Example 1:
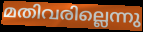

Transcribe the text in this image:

മതിവരില്ലെന്നു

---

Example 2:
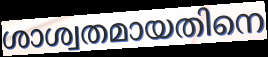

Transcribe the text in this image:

ശാശ്വതമായതിനെ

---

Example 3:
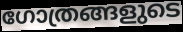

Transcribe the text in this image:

ഗോത്രങ്ങളുടെ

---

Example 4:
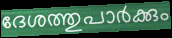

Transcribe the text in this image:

ദേശത്തുപാർക്കും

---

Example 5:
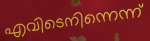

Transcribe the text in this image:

എവിടെനിന്നെന്ന്